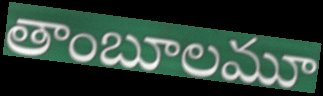
తాంబూలమూ